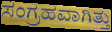
ಸಂಗ್ರಹವಾಗಿತ್ತು